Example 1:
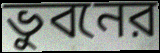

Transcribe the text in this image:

ভুবনের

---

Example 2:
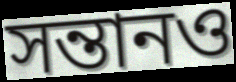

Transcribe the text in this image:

সন্তানও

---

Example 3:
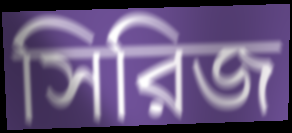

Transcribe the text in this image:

সিরিজ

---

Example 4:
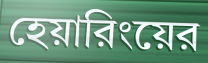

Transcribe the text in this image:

হেয়ারিংয়ের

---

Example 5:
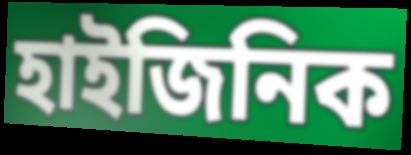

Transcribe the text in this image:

হাইজিনিক